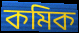
কমিক